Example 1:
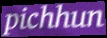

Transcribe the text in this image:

pichhun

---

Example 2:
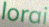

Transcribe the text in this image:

lorai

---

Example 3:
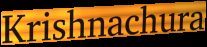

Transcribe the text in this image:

Krishnachura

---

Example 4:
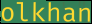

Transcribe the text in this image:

olkhan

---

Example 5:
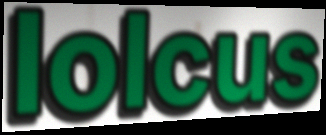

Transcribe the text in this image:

Iolcus